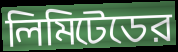
লিমিটেডের